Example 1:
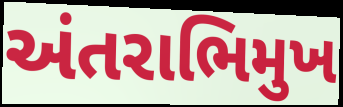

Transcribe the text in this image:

અંતરાભિમુખ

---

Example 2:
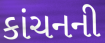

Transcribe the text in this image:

કાંચનની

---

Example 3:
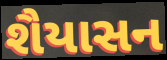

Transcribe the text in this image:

શૈયાસન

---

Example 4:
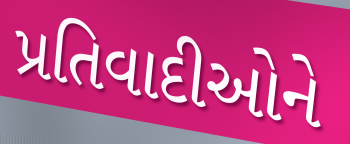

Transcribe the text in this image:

પ્રતિવાદીઓને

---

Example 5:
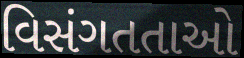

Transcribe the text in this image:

વિસંગતતાઓ